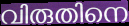
വിരുതിനെ